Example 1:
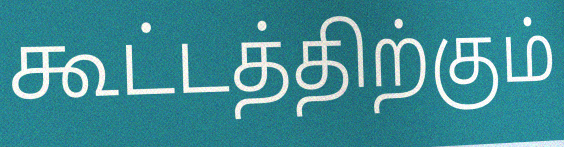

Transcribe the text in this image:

கூட்டத்திற்கும்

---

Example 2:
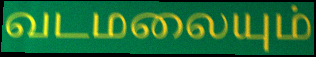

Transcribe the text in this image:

வடமலையும்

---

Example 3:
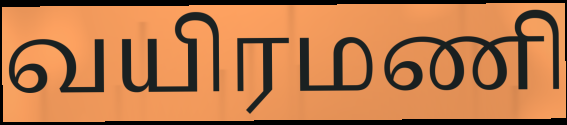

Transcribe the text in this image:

வயிரமணி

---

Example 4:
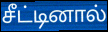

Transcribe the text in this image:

சீட்டினால்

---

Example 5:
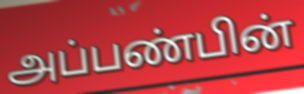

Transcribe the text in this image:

அப்பண்பின்